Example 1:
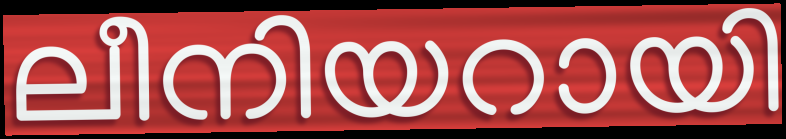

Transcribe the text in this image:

ലീനിയറായി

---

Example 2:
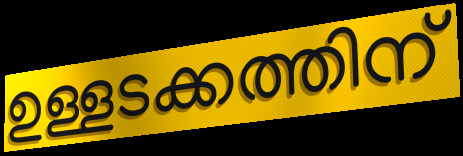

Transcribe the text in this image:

ഉള്ളടക്കത്തിന്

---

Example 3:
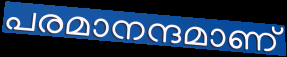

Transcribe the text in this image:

പരമാനന്ദമാണ്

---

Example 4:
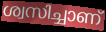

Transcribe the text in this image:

ശ്വസിച്ചാണ്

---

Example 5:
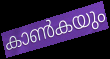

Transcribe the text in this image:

കാൺകയും